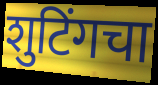
शुटिंगचा